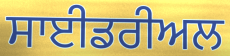
ਸਾਈਡਰੀਅਲ